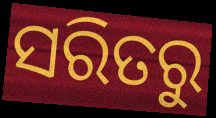
ସରିତରୁ